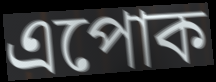
এপোক